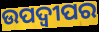
ଉପଦ୍ୱୀପର